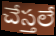
చేస్తలే